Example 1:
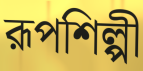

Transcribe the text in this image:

রূপশিল্পী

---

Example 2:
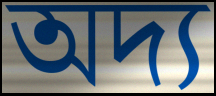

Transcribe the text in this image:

অদ্য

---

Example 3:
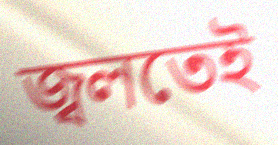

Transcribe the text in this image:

জ্বলতেই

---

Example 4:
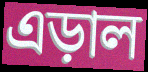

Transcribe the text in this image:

এড়াল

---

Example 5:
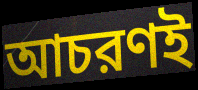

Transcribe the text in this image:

আচরণই